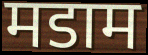
मडाम